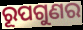
ରୂପଗୁଣର